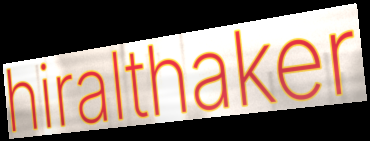
hiralthaker